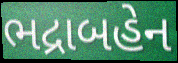
ભદ્રાબહેન